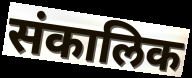
संकालिक